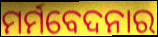
ମର୍ମବେଦନାର